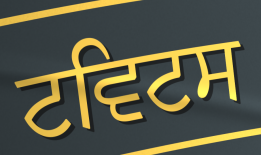
ਟਵਿਟਸ